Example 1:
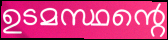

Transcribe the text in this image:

ഉടമസ്ഥന്റെ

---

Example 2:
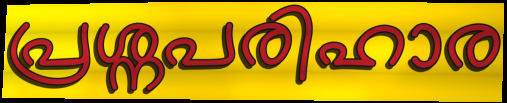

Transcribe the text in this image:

പ്രശ്നപരിഹാര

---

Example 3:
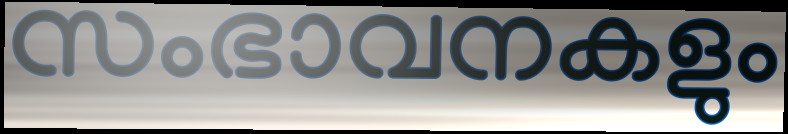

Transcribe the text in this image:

സംഭാവനകളും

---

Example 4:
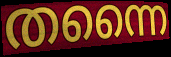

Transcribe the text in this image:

തന്നൈ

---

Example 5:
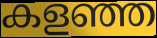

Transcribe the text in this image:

കളഞ്ഞ